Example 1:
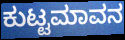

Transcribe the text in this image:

ಕುಟ್ಟಮಾವನ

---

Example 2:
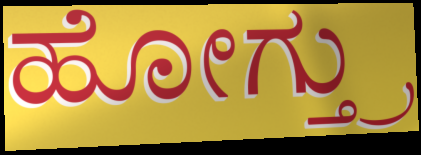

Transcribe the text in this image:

ಹೋಗ್ತ್ರು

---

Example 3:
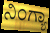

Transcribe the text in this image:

ನಿಂಗ್ಯಾ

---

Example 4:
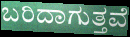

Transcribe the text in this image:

ಬರಿದಾಗುತ್ತವೆ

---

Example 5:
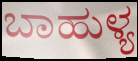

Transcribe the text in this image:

ಬಾಹುಳ್ಯ